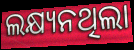
ଲକ୍ଷ୍ୟନଥିଲା